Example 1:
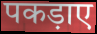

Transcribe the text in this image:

पकड़ाए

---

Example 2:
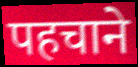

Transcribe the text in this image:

पहचाने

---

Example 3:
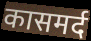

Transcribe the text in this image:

कासमर्द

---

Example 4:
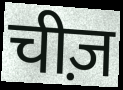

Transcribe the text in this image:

चीज़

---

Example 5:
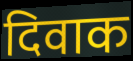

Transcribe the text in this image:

दिवाक